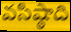
వసిష్ఠాది